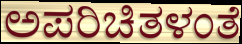
ಅಪರಿಚಿತಳಂತೆ